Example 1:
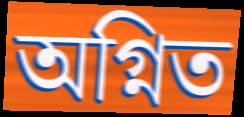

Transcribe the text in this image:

অগ্নিত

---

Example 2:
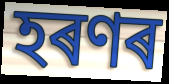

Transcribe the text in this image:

হৰণৰ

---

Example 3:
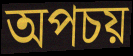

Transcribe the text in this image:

অপচয়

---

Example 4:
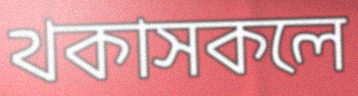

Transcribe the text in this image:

থকাসকলে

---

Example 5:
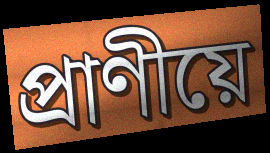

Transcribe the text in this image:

প্ৰাণীয়ে